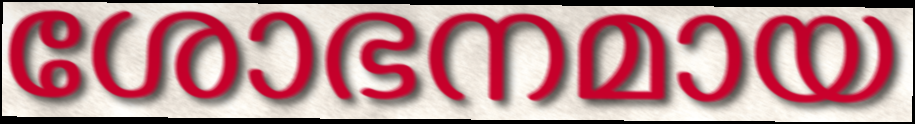
ശോഭനമായ